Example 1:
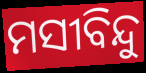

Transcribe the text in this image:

ମସୀବିନ୍ଦୁ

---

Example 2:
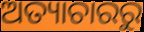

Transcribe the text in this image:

ଅତ୍ୟାଚାରରୁ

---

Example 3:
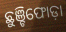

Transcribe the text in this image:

ଛୁଞ୍ଚିଫୋଡ଼ା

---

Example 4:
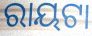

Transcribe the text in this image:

ରାୟଟା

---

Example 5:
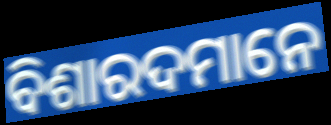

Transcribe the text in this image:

ବିଶାରଦମାନେ